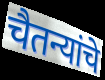
चैतन्यांचे